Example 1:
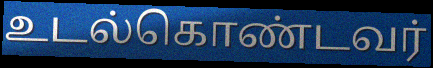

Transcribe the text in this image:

உடல்கொண்டவர்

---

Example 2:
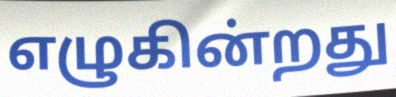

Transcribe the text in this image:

எழுகின்றது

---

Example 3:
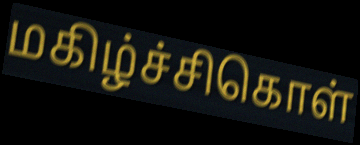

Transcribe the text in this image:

மகிழ்ச்சிகொள்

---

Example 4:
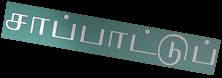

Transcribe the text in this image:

சாப்பாட்டுப்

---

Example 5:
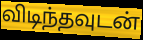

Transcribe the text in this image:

விடிந்தவுடன்